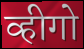
व्हीगो